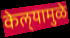
केल्यामुळे